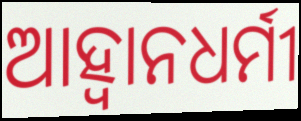
ଆହ୍ବାନଧର୍ମୀ